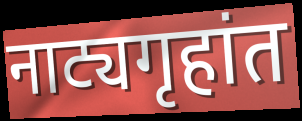
नाट्यगृहांत